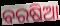
ବରଷିଆ